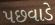
પછવાડે